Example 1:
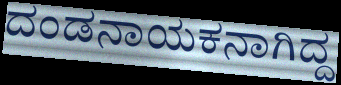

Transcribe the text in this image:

ದಂಡನಾಯಕನಾಗಿದ್ದ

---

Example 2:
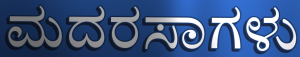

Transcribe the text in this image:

ಮದರಸಾಗಳು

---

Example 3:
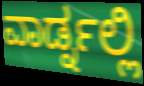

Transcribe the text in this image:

ವಾರ್ಡ್ನಲ್ಲಿ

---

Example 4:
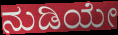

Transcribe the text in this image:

ನುಡಿಯೇ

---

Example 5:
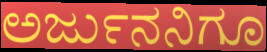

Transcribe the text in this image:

ಅರ್ಜುನನಿಗೂ